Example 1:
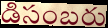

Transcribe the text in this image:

డిసంబరు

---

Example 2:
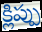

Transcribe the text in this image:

క్లిప్పు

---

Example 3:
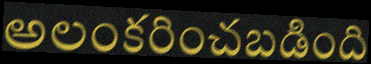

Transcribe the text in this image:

అలంకరించబడింది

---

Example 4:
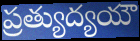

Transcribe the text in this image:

ప్రత్యుద్యయౌ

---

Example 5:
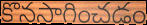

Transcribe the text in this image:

కొనసాగించడం